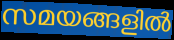
സമയങ്ങളിൽ